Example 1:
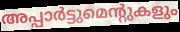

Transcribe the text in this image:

അപ്പാർട്ടുമെന്റുകളും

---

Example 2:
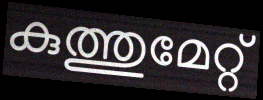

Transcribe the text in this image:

കുത്തുമേറ്റ്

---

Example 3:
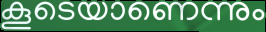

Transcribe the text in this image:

കൂടെയാണെന്നും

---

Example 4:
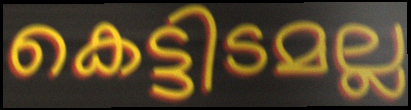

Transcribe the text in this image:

കെട്ടിടമല്ല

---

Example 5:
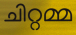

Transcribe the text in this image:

ചിറ്റമ്മ